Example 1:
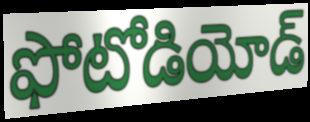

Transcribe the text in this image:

ఫోటోడియోడ్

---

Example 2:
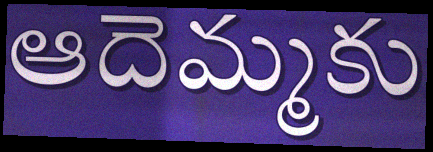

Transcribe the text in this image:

ఆదెమ్మకు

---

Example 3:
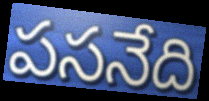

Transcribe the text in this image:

పసనేది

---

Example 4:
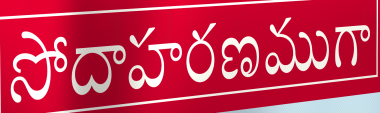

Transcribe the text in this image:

సోదాహరణముగా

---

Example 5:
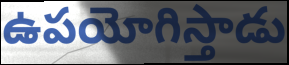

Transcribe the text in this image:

ఉపయోగిస్తాడు